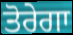
ਤੋਰੇਗਾ